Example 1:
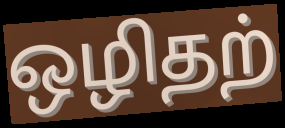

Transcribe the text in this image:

ஒழிதற்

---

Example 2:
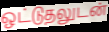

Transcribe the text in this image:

ஒட்டுதலுடன்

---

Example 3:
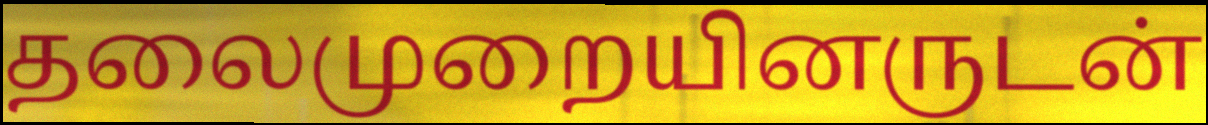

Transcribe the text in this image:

தலைமுறையினருடன்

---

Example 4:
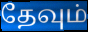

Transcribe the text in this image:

தேவும்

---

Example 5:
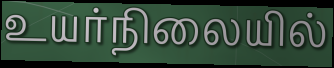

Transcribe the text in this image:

உயர்நிலையில்